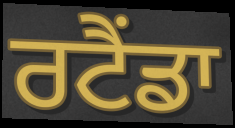
ਰਟੈਂਡਾ